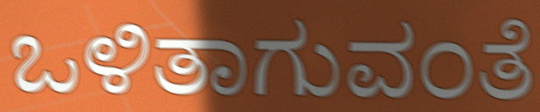
ಒಳಿತಾಗುವಂತೆ